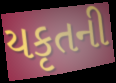
યકૃતની